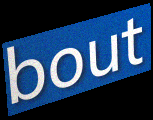
bout